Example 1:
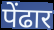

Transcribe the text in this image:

पेंढार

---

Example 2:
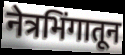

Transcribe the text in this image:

नेत्रभिंगातून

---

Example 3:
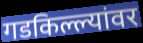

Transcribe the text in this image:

गडकिल्ल्यांवर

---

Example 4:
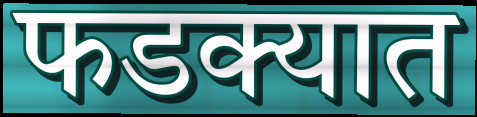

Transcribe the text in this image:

फडक्‍यात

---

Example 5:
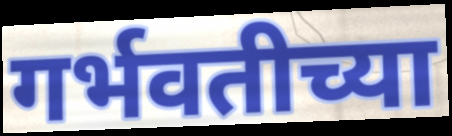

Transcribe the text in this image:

गर्भवतीच्या